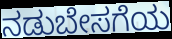
ನಡುಬೇಸಗೆಯ